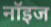
नॉइज